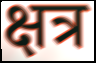
क्षत्र